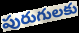
పురుగులకు